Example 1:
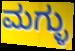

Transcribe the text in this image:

ಮಗ್ಳು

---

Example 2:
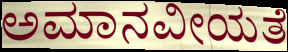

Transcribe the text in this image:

ಅಮಾನವೀಯತೆ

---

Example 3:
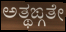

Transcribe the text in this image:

ಅತ್ಥಙ್ಗತೇ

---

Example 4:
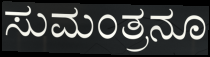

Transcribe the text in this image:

ಸುಮಂತ್ರನೂ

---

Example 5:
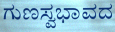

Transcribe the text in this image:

ಗುಣಸ್ವಭಾವದ